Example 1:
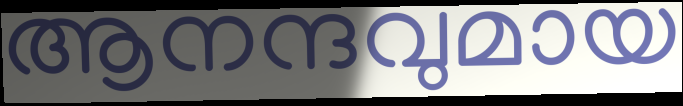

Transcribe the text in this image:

ആനന്ദവുമായ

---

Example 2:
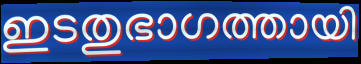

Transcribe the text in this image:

ഇടതുഭാഗത്തായി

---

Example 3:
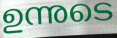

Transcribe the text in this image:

ഉന്നുടെ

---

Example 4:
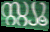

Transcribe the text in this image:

സ്റ്റ്യൂ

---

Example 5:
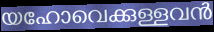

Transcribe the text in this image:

യഹോവെക്കുള്ളവൻ